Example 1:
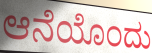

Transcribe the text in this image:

ಆನೆಯೊಂದು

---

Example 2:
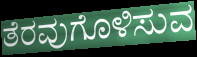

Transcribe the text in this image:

ತೆರವುಗೊಳಿಸುವ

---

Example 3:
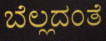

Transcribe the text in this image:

ಬೆಲ್ಲದಂತೆ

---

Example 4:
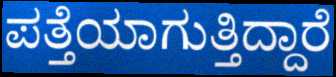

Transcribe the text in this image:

ಪತ್ತೆಯಾಗುತ್ತಿದ್ದಾರೆ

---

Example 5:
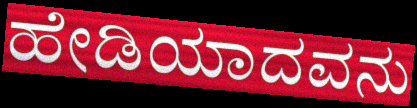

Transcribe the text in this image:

ಹೇಡಿಯಾದವನು